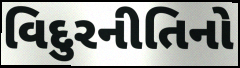
વિદુરનીતિનો